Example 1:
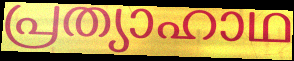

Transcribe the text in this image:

പ്രത്യാഹാഥ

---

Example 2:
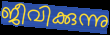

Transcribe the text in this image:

ജീവിക്കുന്നു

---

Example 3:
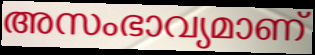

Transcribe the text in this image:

അസംഭാവ്യമാണ്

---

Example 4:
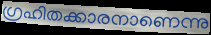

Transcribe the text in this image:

ഗ്രഹിതക്കാരനാണെന്നു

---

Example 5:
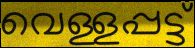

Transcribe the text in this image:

വെള്ളപ്പട്ട്